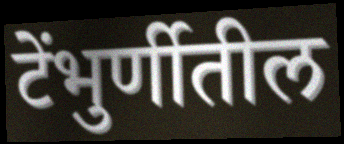
टेंभुर्णीतील